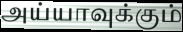
அய்யாவுக்கும்